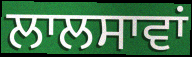
ਲਾਲਸਾਵਾਂ